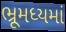
ભ્રૂમધ્યમાં